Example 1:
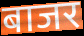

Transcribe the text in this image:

बाजर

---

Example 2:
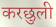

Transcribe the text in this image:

करछुली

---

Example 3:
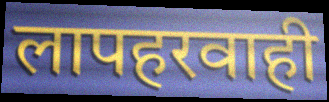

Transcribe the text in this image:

लापहरवाही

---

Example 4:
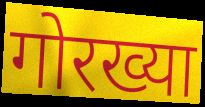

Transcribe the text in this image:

गोरख्या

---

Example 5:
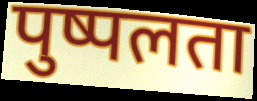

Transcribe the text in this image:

पुष्पलता